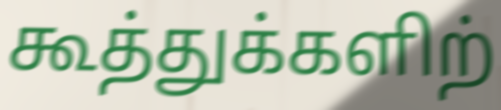
கூத்துக்களிற்